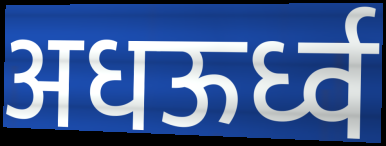
अधऊर्ध्व